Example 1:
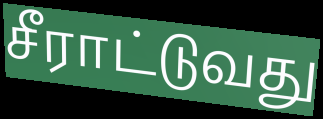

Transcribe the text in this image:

சீராட்டுவது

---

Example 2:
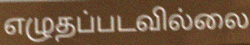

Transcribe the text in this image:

எழுதப்படவில்லை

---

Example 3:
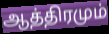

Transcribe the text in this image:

ஆத்திரமும்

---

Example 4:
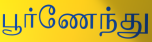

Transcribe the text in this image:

பூர்ணேந்து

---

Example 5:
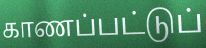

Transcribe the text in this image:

காணப்பட்டுப்